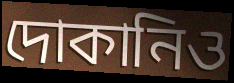
দোকানিও